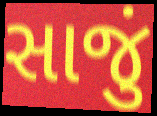
સાજું